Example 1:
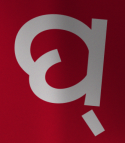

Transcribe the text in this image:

ପ୍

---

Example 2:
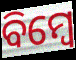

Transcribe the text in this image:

ବିମ୍ବେ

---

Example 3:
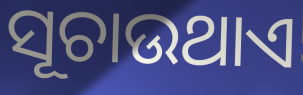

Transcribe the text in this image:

ସୂଚାଉଥାଏ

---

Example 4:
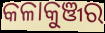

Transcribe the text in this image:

କଳାକୁଞ୍ଜର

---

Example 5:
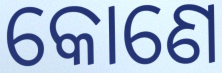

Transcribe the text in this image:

କୋଣେ